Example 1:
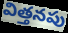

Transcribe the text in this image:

విత్తనపు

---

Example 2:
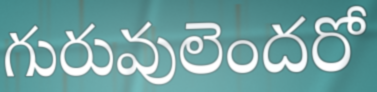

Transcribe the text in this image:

గురువులెందరో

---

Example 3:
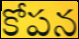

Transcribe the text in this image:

కోపన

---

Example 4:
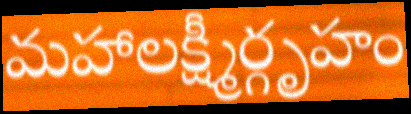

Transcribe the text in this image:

మహాలక్ష్మీర్గృహం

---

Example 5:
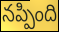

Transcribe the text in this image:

నప్పింది